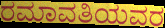
ರಮಾವತಿಯವರ